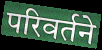
परिवर्तने